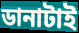
ডানাটাই